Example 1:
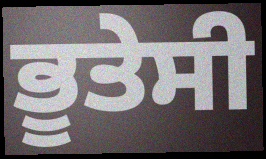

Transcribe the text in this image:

ਭੂਤੇਸੀ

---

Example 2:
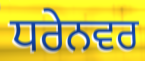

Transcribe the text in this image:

ਧਰੇਨਵਰ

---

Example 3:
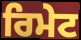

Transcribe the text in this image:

ਰਿਮੇਟ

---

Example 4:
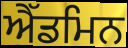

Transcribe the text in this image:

ਐੱਡਮਿਨ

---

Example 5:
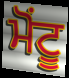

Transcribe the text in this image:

ਮੋਂਟੂ